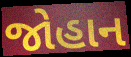
જોહાન